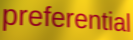
preferential